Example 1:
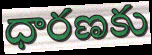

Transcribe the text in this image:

ధారణకు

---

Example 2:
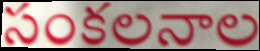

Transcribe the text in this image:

సంకలనాల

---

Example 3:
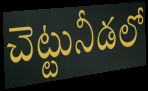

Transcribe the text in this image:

చెట్టునీడలో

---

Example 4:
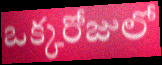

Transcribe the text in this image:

ఒక్కరోజులో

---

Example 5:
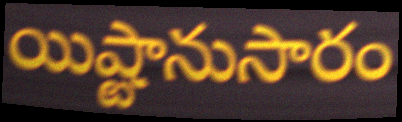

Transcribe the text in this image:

యిష్టానుసారం